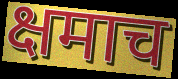
क्षमाच